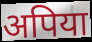
अपिया